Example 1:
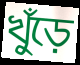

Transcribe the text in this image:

খুঁড়ে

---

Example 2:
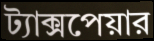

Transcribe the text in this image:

ট্যাক্সপেয়ার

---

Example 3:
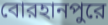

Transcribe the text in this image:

বোরহানপুরে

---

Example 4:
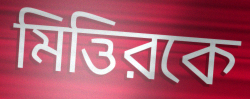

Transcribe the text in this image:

মিত্তিরকে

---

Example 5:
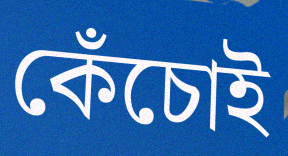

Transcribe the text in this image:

কেঁচোই